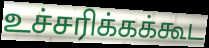
உச்சரிக்கக்கூட